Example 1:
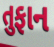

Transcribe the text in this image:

તુફાન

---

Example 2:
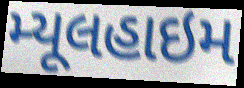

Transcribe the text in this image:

મ્યૂલહાઇમ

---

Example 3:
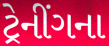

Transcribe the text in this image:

ટ્રેનીંગના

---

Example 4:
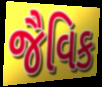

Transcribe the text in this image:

જૈવિક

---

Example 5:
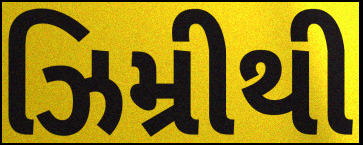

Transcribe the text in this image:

ઝિમ્રીથી